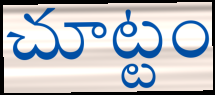
చూట్టం